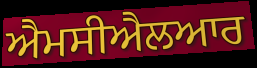
ਐਮਸੀਐਲਆਰ